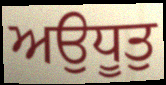
ਅਉਧੂਤੁ